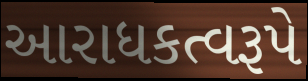
આરાધકત્વરૂપે